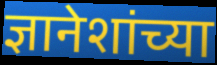
ज्ञानेशांच्या